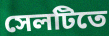
সেলটিতে